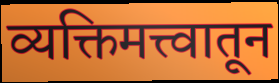
व्यक्तिमत्त्वातून